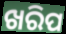
ଖରିପ